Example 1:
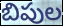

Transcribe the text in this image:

బిపుల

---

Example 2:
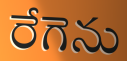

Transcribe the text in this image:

రేగెను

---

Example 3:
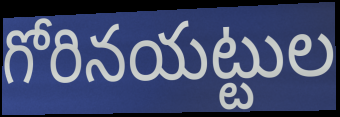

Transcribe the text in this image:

గోరినయట్టుల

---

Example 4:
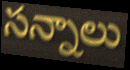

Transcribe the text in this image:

సన్నాలు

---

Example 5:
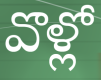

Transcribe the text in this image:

వొళ్లో